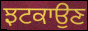
ਝਟਕਾਉਣ